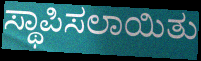
ಸ್ಥಾಪಿಸಲಾಯಿತು